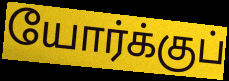
யோர்க்குப்